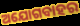
ଅଯୋଗବାହର